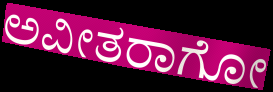
ಅವೀತರಾಗೋ